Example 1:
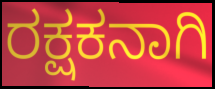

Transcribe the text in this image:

ರಕ್ಷಕನಾಗಿ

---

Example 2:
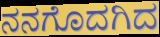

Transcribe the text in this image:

ನನಗೊದಗಿದ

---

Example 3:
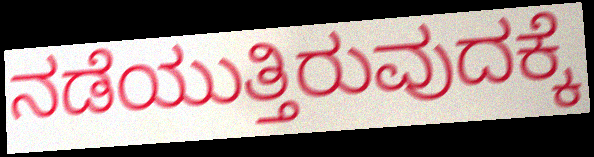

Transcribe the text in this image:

ನಡೆಯುತ್ತಿರುವುದಕ್ಕೆ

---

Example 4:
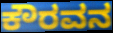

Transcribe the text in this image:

ಕೌರವನ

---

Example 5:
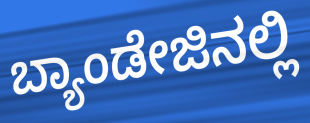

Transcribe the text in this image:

ಬ್ಯಾಂಡೇಜಿನಲ್ಲಿ